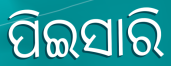
ପିଇସାରି